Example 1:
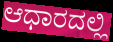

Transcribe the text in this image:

ಆಧಾರದಲ್ಲಿ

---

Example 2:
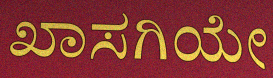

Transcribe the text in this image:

ಖಾಸಗಿಯೇ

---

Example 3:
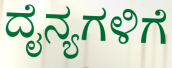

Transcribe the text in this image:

ದೈನ್ಯಗಳಿಗೆ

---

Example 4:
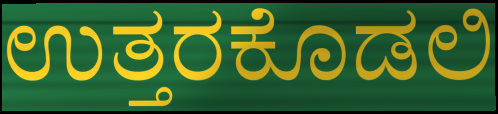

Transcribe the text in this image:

ಉತ್ತರಕೊಡಲಿ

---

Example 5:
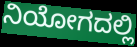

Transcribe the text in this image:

ನಿಯೋಗದಲ್ಲಿ